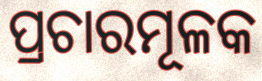
ପ୍ରଚାରମୂଳକ